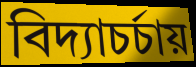
বিদ্যাচর্চায়